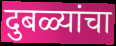
दुबळ्यांचा